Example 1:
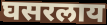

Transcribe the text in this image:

घसरलाय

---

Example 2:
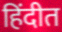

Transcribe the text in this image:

हिंदीत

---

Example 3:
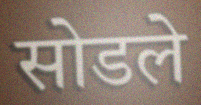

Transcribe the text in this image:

सोडले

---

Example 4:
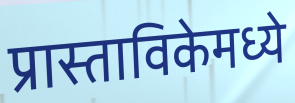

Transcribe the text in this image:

प्रास्ताविकेमध्ये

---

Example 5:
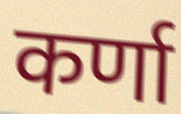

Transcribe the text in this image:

कर्णा